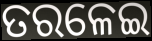
ତରଳେଇ